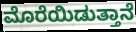
ಮೊರೆಯಿಡುತ್ತಾನೆ